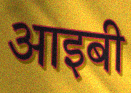
आइबी